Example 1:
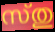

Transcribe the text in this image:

സ്‌തു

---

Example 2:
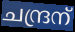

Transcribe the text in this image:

ചന്ദ്രന്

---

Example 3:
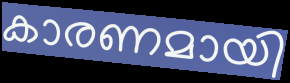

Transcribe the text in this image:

കാരണമായി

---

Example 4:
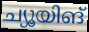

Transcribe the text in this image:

ച്യൂയിങ്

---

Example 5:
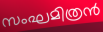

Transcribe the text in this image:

സംഘമിത്രൻ